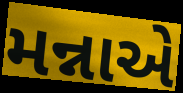
મન્નાએ